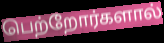
பெற்றோர்களால்